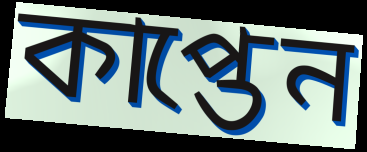
কাপ্তেন